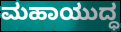
ಮಹಾಯುದ್ಧ